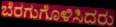
ಬೆರಗುಗೊಳಿಸಿದರು